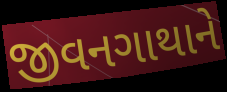
જીવનગાથાને